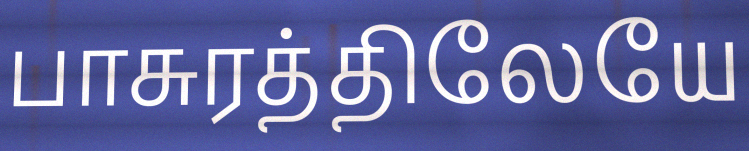
பாசுரத்திலேயே